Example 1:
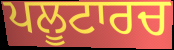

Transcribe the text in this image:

ਪਲੂਟਾਰਚ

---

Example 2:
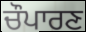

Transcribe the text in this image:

ਚੌਪਾਰਣ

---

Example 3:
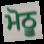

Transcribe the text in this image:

ਮੋਠੂ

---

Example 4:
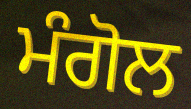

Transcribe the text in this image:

ਮੰਗੋਲ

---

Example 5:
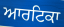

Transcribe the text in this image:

ਆਰਟਿਕਾ